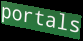
portals